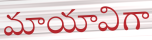
మాయావిగా